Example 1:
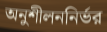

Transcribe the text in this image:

অনুশীলননির্ভর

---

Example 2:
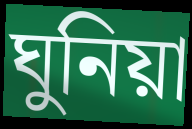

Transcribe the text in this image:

ঘুনিয়া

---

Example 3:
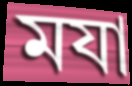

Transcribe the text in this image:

মযা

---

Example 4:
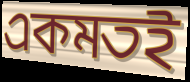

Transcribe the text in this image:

একমতই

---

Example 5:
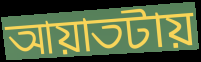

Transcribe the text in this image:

আয়াতটায়